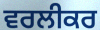
ਵਰਲੀਕਰ